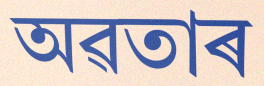
অৱতাৰ